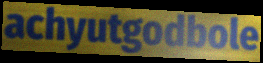
achyutgodbole